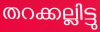
തറക്കല്ലിട്ടു